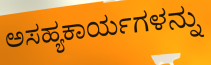
ಅಸಹ್ಯಕಾರ್ಯಗಳನ್ನು